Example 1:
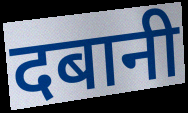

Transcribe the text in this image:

दबानी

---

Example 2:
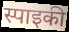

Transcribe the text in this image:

स्पाइकी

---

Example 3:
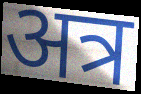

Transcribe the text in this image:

अत्र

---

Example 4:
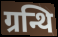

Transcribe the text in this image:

ग्रन्थि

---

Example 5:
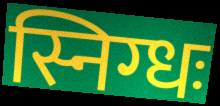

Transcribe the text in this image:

स्निग्धः